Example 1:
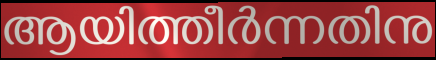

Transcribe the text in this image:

ആയിത്തീർന്നതിനു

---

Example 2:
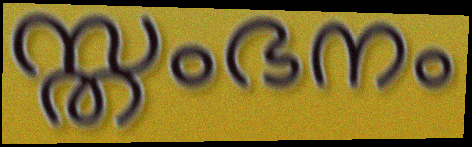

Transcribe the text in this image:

സ്തംഭനം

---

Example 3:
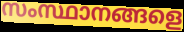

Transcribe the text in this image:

സംസ്ഥാനങ്ങളെ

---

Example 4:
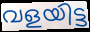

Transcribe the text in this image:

വളയിട്ട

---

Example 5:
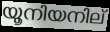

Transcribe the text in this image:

യൂനിയനില്